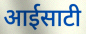
आईसाटी